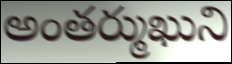
అంతర్ముఖుని